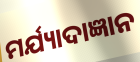
ମର୍ଯ୍ୟାଦାଜ୍ଞାନ